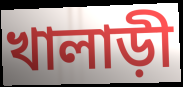
খালাড়ী